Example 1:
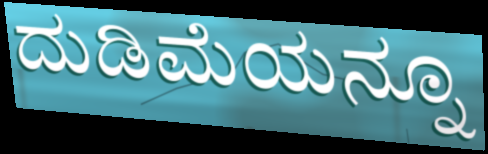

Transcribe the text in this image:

ದುಡಿಮೆಯನ್ನೂ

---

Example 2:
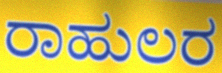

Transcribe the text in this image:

ರಾಹುಲರ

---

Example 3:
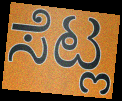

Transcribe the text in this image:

ಸೆಟ್ಲ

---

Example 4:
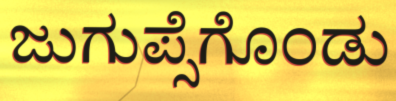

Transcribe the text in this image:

ಜುಗುಪ್ಸೆಗೊಂಡು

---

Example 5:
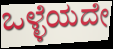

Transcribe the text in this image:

ಒಳ್ಳೆಯದೇ